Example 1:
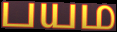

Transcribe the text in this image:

பயம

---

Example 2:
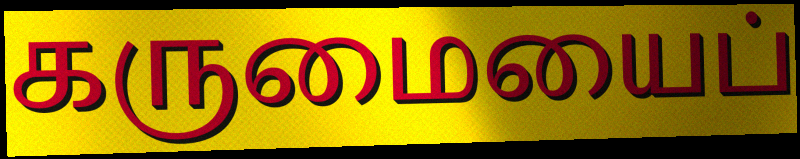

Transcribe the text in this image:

கருமையைப்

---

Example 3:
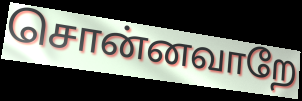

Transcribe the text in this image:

சொன்னவாறே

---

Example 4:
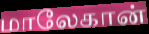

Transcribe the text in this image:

மாலேகான்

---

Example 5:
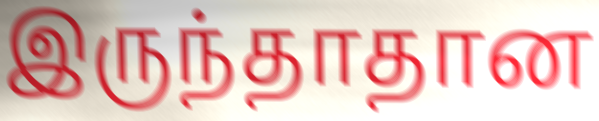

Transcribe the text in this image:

இருந்தாதான